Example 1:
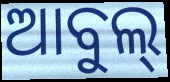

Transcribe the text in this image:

ଆବୁଲ୍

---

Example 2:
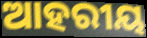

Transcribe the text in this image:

ଆହରୀୟ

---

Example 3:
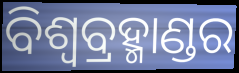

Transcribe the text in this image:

ବିଶ୍ୱବ୍ରହ୍ମାଣ୍ଡର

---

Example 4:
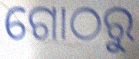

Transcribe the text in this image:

ଗୋଠରୁ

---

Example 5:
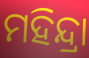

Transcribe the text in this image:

ମହିନ୍ଦ୍ରା